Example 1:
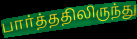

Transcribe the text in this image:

பார்த்ததிலிருந்து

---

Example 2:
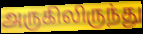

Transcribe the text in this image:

அருகிலிருந்து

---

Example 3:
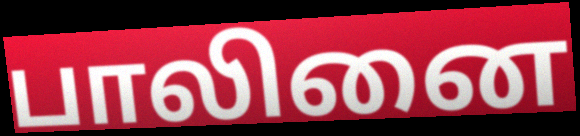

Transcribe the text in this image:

பாலினை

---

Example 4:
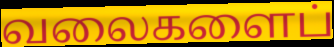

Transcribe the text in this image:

வலைகளைப்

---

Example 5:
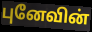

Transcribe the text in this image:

புனேவின்